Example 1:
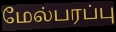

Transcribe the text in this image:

மேல்பரப்பு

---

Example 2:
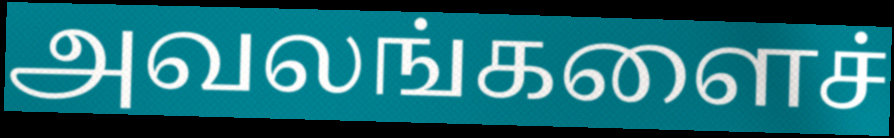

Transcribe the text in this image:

அவலங்களைச்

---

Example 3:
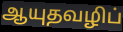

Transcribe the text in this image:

ஆயுதவழிப்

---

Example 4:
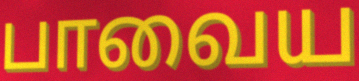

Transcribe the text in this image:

பாவைய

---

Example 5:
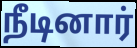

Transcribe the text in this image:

நீடினார்